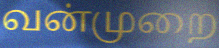
வன்முறை